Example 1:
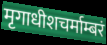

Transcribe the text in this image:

मृगाधीशचर्माम्बरं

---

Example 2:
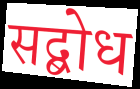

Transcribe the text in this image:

सद्बोध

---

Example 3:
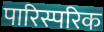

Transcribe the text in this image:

पारिस्परिक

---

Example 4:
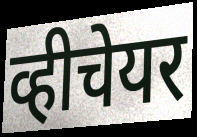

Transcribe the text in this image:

व्हीचेयर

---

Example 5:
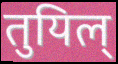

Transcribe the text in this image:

तुयिल्